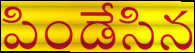
పిండేసిన